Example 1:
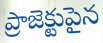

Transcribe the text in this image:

ప్రాజెక్టుపైన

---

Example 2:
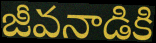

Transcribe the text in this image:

జీవనాడికి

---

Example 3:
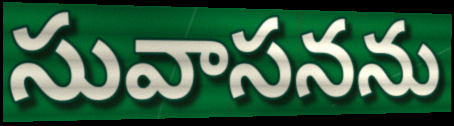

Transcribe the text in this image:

సువాసనను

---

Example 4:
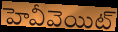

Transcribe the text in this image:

హెవీవెయిట్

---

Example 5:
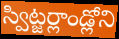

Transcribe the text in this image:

స్విట్జర్లాండ్లోని